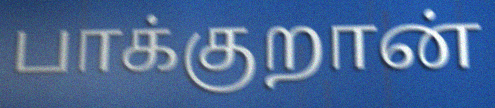
பாக்குறான்